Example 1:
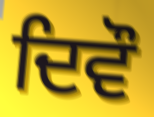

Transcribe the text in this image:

ਦਿਵੌ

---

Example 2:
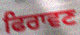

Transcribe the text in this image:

ਫਿਰਾਵਣ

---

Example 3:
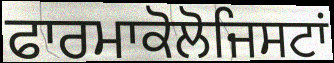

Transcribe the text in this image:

ਫਾਰਮਾਕੋਲੋਜਿਸਟਾਂ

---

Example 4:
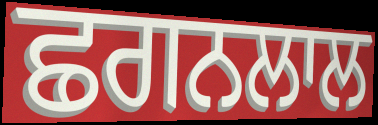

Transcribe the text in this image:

ਛਗਨਲਾਲ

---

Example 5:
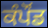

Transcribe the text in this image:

ਕੰਪੌਂਡ